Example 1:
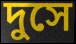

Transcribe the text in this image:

দুসে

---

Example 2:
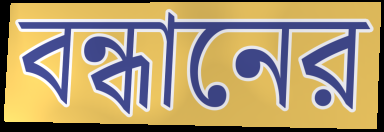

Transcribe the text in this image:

বন্ধানের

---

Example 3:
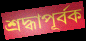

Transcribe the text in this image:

শ্রদ্ধাপূর্বক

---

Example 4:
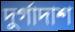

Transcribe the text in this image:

দুর্গাদাশ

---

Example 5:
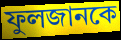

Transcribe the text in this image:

ফুলজানকে